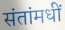
संतांमधीं